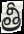
తీ